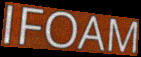
IFOAM